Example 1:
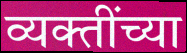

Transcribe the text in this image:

व्यक्तींच्या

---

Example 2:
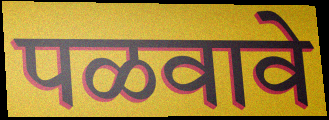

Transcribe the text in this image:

पळवावे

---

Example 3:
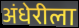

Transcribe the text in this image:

अंधेरीला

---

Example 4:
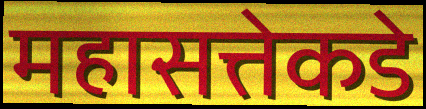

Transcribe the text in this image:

महासत्तेकडे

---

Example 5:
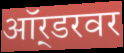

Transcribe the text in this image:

ऑर्डरवर